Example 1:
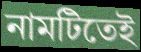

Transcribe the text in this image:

নামটিতেই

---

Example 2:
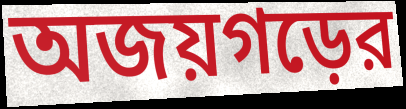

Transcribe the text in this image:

অজয়গড়ের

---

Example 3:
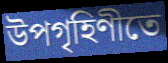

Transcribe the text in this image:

উপগৃহিণীতে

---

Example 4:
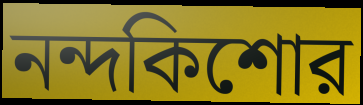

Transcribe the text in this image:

নন্দকিশোর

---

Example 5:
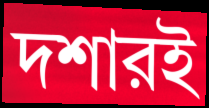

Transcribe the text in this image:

দশারই